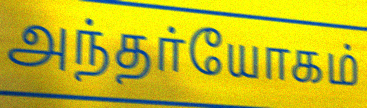
அந்தர்யோகம்